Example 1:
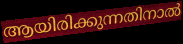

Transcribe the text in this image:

ആയിരിക്കുന്നതിനാൽ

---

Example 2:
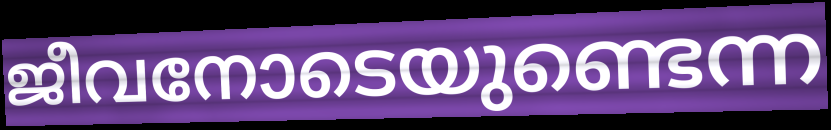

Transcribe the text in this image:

ജീവനോടെയുണ്ടെന്ന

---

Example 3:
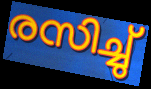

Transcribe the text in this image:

രസിച്ചു്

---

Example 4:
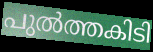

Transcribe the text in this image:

പുൽത്തകിടി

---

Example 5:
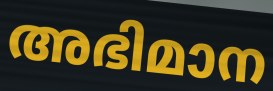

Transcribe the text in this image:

അഭിമാന